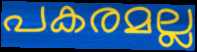
പകരമല്ല